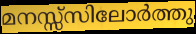
മനസ്സ്സിലോർത്തു